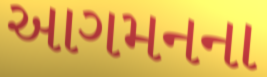
આગમનના